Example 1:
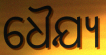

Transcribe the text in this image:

ଧୈଯ୍ୟ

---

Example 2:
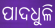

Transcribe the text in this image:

ପାଦଧୁଳି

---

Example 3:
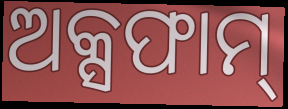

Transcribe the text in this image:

ଅକ୍ସଫାମ୍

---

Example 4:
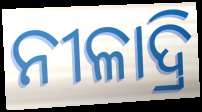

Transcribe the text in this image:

ନୀଳାଦ୍ରି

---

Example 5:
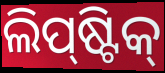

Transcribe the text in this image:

ଲିପ୍‍ଷ୍ଟିକ୍